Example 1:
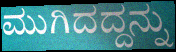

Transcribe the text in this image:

ಮುಗಿದದ್ದನ್ನು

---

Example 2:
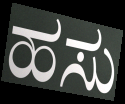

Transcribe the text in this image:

ಹಸು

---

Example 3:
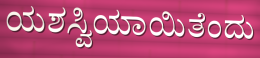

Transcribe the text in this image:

ಯಶಸ್ವಿಯಾಯಿತೆಂದು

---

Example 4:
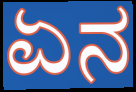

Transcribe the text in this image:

ಏನ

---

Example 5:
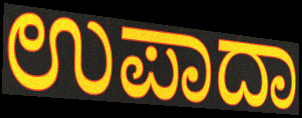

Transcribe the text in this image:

ಉಪಾದಾ